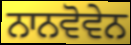
ਨਾਨਵੋਵੇਨ